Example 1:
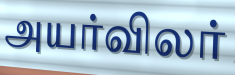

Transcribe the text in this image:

அயர்விலர்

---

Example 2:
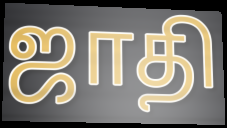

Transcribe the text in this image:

ஜாதி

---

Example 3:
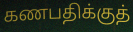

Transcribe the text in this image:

கணபதிக்குத்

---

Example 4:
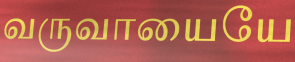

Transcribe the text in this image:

வருவாயையே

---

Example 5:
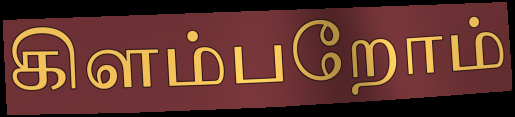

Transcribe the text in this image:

கிளம்பறோம்